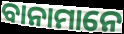
ବାନାମାନେ